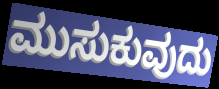
ಮುಸುಕುವುದು